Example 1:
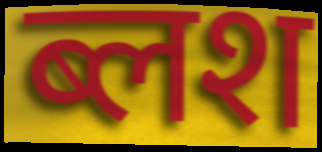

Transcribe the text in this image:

ब्लश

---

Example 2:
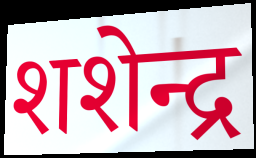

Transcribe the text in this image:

शशेन्द्र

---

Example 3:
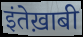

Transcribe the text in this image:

इंतेख़ाबी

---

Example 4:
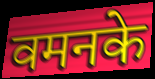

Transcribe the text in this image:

वमनके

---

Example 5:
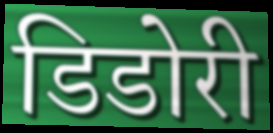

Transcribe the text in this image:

डिडोरी